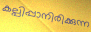
കല്പിപ്പാനിരിക്കുന്ന